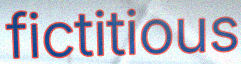
fictitious